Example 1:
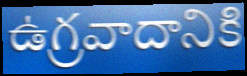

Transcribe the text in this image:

ఉగ్రవాదానికి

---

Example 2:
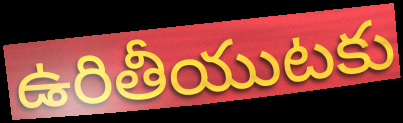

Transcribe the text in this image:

ఉరితీయుటకు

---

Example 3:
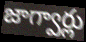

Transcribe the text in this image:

జాగ్వార్లు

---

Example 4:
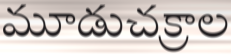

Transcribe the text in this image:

మూడుచక్రాల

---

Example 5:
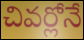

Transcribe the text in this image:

చివర్లోనే